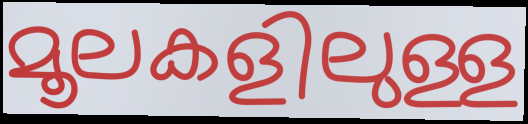
മൂലകളിലുള്ള